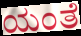
ಯಂತೆ